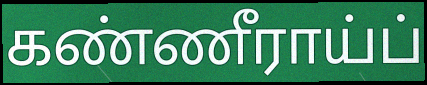
கண்ணீராய்ப்